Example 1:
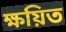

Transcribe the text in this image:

ক্ষয়িত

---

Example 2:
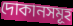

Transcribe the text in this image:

দোকানসমূহ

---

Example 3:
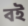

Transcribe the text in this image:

বই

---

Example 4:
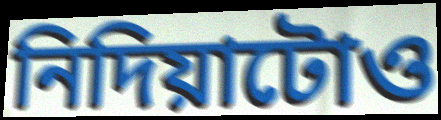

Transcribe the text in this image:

নিদিয়াটোও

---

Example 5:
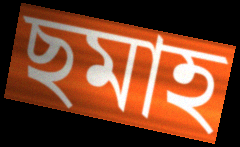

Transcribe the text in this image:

ছমাহ